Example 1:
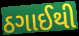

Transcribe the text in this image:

ઠગાઈથી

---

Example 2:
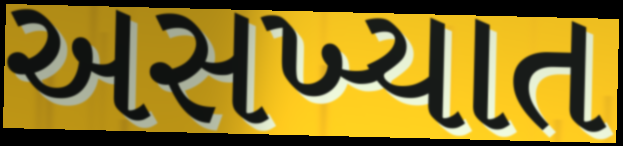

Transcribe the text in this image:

અસખ્યાત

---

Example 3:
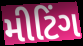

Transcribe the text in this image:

મીટિંગ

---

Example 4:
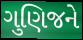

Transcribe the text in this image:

ગુણિજને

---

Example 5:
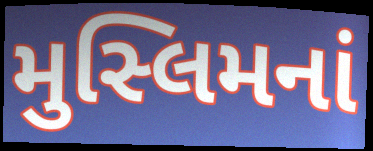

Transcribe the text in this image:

મુસ્લિમનાં